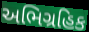
અભિગ્રહિક